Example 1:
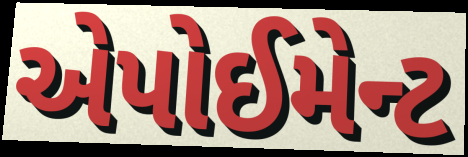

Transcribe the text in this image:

એપોઈમેન્ટ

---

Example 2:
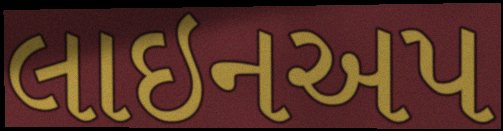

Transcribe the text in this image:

લાઇનઅપ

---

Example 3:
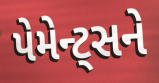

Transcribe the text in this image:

પેમેન્ટ્સને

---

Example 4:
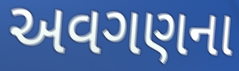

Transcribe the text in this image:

અવગણના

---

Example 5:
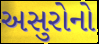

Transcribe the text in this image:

અસુરોનો